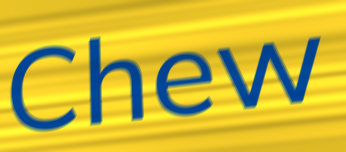
Chew